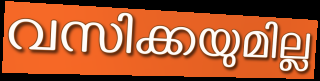
വസിക്കയുമില്ല